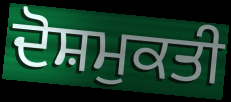
ਦੋਸ਼ਮੁਕਤੀ